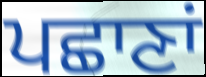
ਪਛਾਣਾਂ